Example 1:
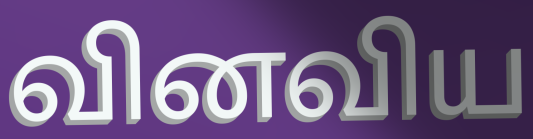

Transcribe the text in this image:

வினவிய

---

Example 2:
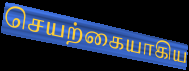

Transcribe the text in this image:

செயற்கையாகிய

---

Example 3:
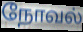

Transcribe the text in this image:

நோவல்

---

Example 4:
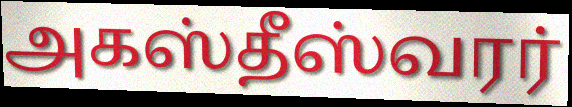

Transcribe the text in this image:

அகஸ்தீஸ்வரர்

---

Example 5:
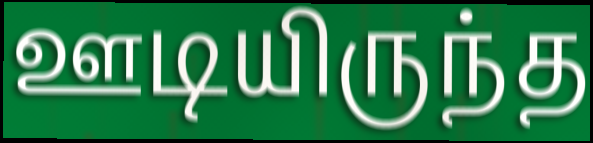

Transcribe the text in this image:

ஊடியிருந்த